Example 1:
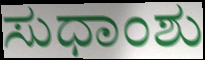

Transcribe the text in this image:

ಸುಧಾಂಶು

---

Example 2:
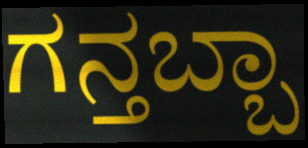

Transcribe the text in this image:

ಗನ್ತಬ್ಬಾ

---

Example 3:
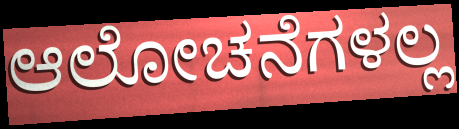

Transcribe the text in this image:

ಆಲೋಚನೆಗಳಲ್ಲ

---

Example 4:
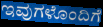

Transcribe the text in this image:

ಇವುಗಳೊಂದಿಗೆ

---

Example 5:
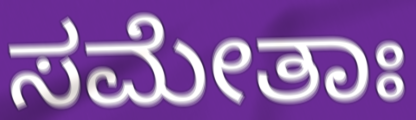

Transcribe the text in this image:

ಸಮೇತಾಃ